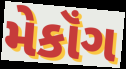
મેકૉંગ